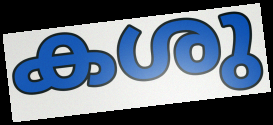
കശു